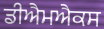
ਡੀਐਮਐਕਸ